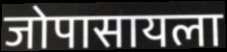
जोपासायला